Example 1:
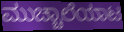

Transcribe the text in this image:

ಮುಚ್ಚಾಲೆಯಾಟ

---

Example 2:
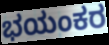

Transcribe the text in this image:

ಭಯಂಕರ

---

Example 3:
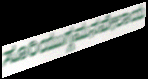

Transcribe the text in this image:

ಸೂರಿಯುಗ್ಗಮನವೇಲಾಯ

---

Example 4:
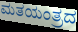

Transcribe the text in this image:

ಮತಯಂತ್ರದ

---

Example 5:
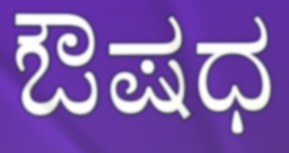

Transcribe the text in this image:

ಔಷಧ